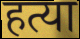
हत्या